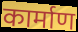
कार्माण